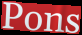
Pons